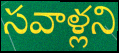
సవాళ్లని